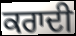
ਕਰਾਦੀ